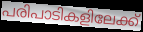
പരിപാടികളിലേക്ക്